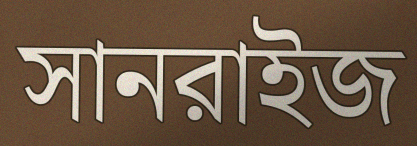
সানরাইজ